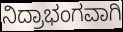
ನಿದ್ರಾಭಂಗವಾಗಿ